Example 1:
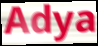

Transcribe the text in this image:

Adya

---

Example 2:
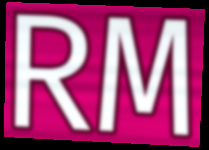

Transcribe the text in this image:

RM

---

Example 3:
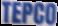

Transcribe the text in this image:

TEPCO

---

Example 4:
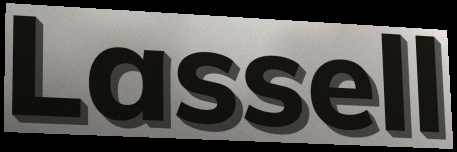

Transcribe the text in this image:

Lassell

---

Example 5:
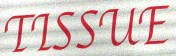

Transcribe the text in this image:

TISSUE